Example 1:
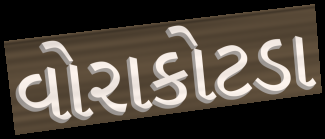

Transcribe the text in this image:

વોરાકોટડા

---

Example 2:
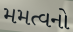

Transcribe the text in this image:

મમત્વનો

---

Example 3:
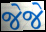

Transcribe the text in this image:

જેજે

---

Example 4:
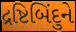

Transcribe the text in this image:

દ્રષ્ટિબિંદુને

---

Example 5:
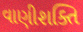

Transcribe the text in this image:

વાણીશક્તિ